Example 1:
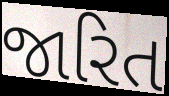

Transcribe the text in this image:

જારિત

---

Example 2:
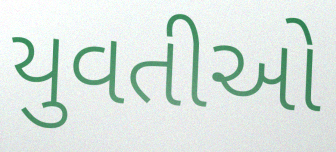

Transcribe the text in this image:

યુવતીઓ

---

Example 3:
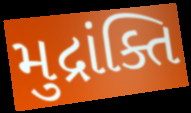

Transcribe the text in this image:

મુદ્રાંક્તિ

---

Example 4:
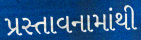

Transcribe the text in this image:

પ્રસ્તાવનામાંથી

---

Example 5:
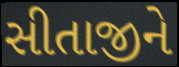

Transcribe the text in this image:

સીતાજીને